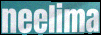
neelima